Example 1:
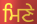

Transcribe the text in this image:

ਮਿਣੇ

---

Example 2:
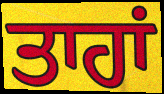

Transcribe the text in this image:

ਤਾਹਾਂ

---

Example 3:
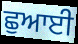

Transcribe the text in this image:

ਛੁਆਈ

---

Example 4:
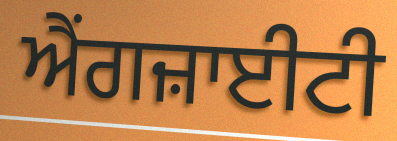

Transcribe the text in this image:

ਐਂਗਜ਼ਾਈਟੀ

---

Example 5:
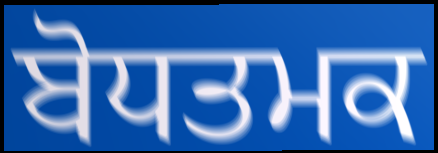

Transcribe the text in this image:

ਬੋਧਤਮਕ